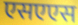
एसएएस